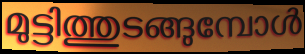
മുട്ടിത്തുടങ്ങുമ്പോൾ